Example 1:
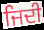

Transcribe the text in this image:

ਜਿਦੀ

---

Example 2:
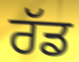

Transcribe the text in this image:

ਰੱਡ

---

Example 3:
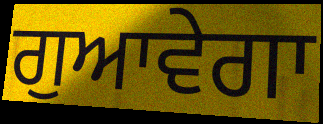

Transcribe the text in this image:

ਗੁਆਵੇਗਾ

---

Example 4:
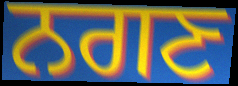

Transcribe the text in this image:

ਨਗਣ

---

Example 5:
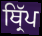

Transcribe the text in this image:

ਥ੍ਰਿੱਪ